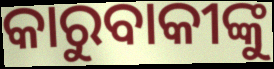
କାରୁବାକୀଙ୍କୁ